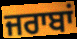
ਜਰਾਬਾਂ